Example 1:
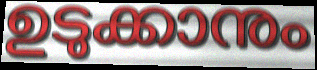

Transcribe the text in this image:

ഉടുക്കാനും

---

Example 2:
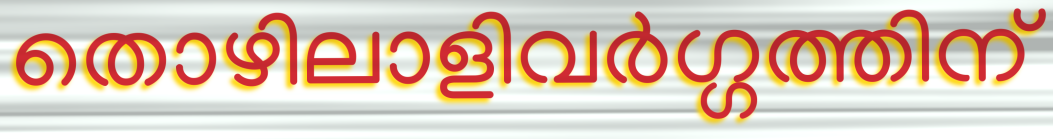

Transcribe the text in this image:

തൊഴിലാളിവർഗ്ഗത്തിന്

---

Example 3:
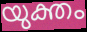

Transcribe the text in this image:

യുക്തം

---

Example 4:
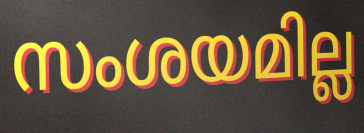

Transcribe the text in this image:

സംശയമില്ല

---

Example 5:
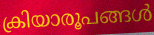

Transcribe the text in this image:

ക്രിയാരൂപങ്ങൾ